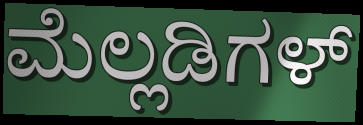
ಮೆಲ್ಲಡಿಗಳ್